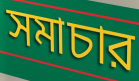
সমাচার